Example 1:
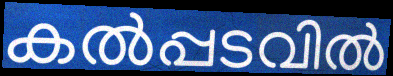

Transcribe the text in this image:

കൽപ്പടവിൽ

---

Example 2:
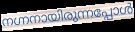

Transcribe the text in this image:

നഗ്നനായിരുന്നപ്പോൾ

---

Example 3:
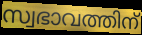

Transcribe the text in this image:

സ്വഭാവത്തിന്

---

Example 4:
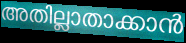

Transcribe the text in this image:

അതില്ലാതാക്കാൻ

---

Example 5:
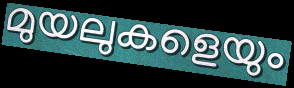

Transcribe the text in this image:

മുയലുകളെയും